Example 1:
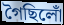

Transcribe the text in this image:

গৈছিলোঁ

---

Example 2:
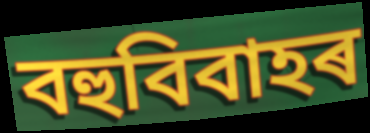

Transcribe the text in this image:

বহুবিবাহৰ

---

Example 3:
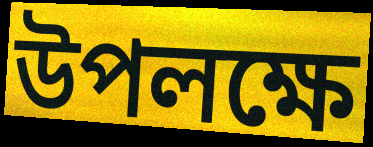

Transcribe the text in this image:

উপলক্ষে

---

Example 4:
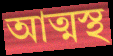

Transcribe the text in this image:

আত্মস্থ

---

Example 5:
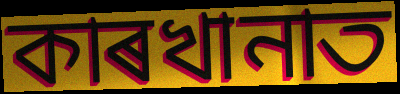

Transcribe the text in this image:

কাৰখানাত